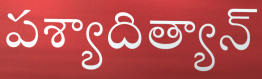
పశ్యాదిత్యాన్